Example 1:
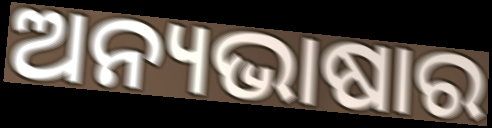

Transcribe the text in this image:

ଅନ୍ୟଭାଷାର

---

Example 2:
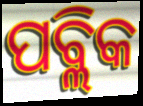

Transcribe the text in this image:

ପବ୍ଲିକ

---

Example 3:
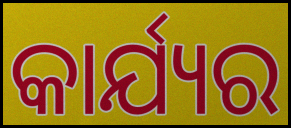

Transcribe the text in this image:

କାର୍ଯ୍ୟର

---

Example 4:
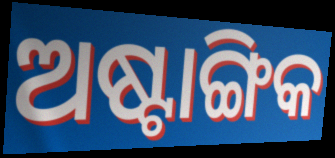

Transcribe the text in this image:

ଅଷ୍ଟାଙ୍ଗିକ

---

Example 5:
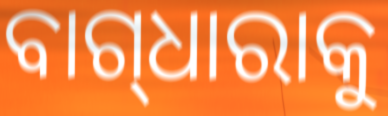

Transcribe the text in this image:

ବାଗ୍‌ଧାରାକୁ